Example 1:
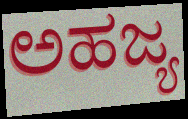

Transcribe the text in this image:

ಅಹಜ್ಯ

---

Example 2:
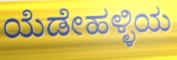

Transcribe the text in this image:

ಯೆಡೇಹಳ್ಳಿಯ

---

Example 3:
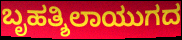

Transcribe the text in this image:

ಬೃಹತ್ಶಿಲಾಯುಗದ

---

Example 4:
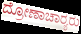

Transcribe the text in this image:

ದ್ರೋಣಾಚಾರ‍್ಯರು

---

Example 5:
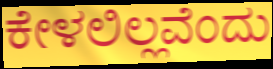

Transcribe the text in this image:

ಕೇಳಲಿಲ್ಲವೆಂದು